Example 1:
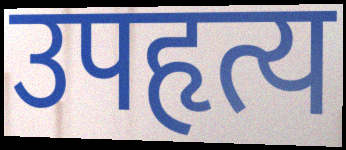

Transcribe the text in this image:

उपहृत्य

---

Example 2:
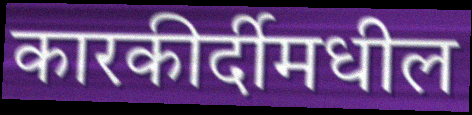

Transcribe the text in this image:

कारकीर्दीमधील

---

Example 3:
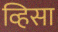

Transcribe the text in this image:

व्हिसा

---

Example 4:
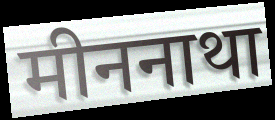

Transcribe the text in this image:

मीननाथा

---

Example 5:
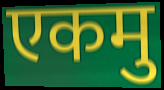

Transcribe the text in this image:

एकमु